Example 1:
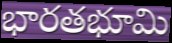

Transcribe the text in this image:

భారతభూమి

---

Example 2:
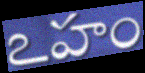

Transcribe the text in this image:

ఽహం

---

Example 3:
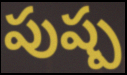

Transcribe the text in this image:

పుష్ప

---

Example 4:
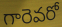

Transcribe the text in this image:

గారెవరో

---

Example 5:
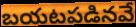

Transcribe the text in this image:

బయటపడినవే